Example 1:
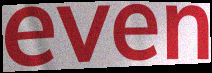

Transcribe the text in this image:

even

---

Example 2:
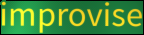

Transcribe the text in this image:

improvise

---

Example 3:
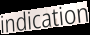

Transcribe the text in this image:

indication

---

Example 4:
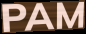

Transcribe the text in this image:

PAM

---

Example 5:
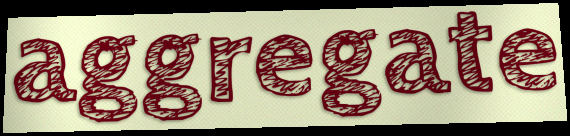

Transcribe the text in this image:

aggregate